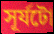
সূৰ্যটো